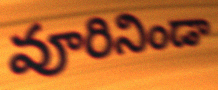
వూరినిండా